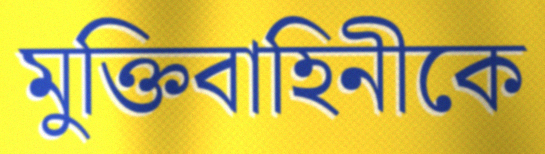
মুক্তিবাহিনীকে